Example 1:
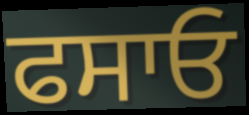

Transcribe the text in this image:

ਫਸਾਓ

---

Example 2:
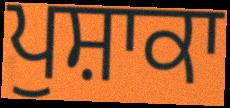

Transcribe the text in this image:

ਪੁਸ਼ਾਕਾ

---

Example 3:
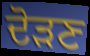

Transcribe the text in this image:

ਦੋੜਣ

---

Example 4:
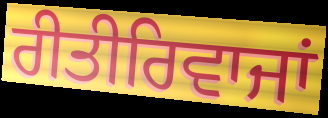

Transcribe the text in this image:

ਰੀਤੀਰਿਵਾਜਾਂ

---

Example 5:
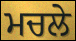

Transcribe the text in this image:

ਮਚਲੇ